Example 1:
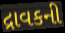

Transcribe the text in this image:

દ્રાવકની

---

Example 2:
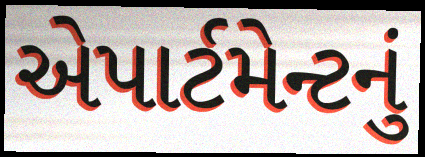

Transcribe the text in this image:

એપાર્ટમેન્ટનું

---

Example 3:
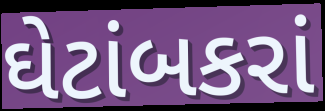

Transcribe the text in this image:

ઘેટાંબકરાં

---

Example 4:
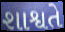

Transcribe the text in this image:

શાશ્વતે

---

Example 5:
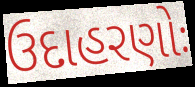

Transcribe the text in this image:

ઉદાહરણોઃ